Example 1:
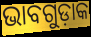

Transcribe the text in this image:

ଭାବଗୁଡ଼ାକ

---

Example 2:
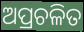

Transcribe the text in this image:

ଅପ୍ରଚଳିତ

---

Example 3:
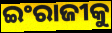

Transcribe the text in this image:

ଇଂରାଜୀକୁ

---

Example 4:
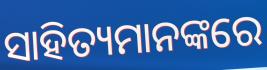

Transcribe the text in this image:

ସାହିତ୍ୟମାନଙ୍କରେ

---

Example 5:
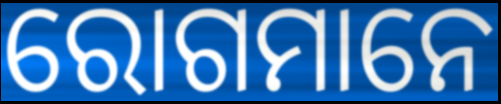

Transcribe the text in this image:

ରୋଗମାନେ